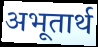
अभूतार्थ